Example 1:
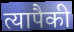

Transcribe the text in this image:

त्यापैकी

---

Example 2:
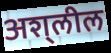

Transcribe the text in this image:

अश्लील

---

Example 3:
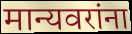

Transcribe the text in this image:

मान्यवरांना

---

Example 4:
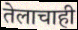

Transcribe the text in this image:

तेलाचाही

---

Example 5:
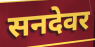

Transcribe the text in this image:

सनदेवर